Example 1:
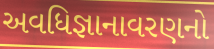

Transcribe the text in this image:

અવધિજ્ઞાનાવરણનો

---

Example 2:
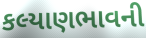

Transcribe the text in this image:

કલ્યાણભાવની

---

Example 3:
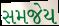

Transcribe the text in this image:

સમજેય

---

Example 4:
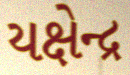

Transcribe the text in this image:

યક્ષેન્દ્ર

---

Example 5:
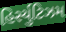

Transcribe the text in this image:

હિર્સ્યુટિઝમ